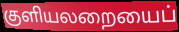
குளியலறையைப்